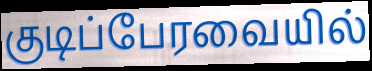
குடிப்பேரவையில்